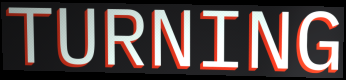
TURNING